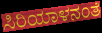
ಸಿರಿಯಾಳನಂತೆ